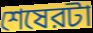
শেষেরটা